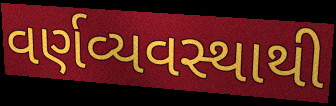
વર્ણવ્યવસ્થાથી